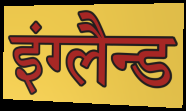
इंग्लैन्ड